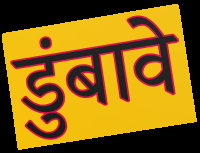
डुंबावे